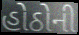
હોઠોની